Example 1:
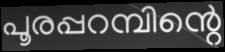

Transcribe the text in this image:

പൂരപ്പറമ്പിന്റെ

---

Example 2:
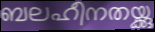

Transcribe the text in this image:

ബലഹീനതയ്ക്കു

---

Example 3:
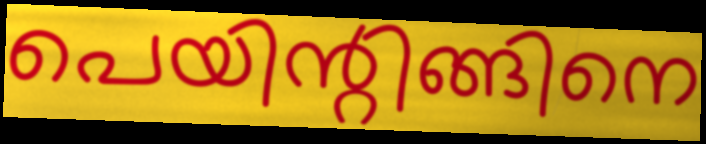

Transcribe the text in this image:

പെയിന്റിങ്ങിനെ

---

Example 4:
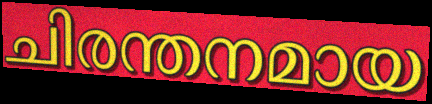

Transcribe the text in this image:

ചിരന്തനമായ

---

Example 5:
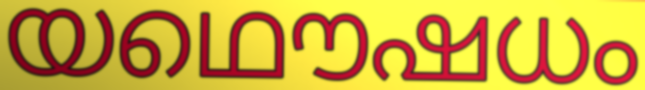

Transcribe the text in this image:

യഥൌഷധം